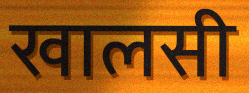
खालसी